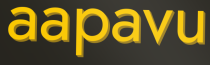
aapavu